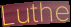
Luthe